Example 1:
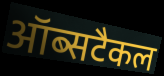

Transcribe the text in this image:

ऑब्सटैकल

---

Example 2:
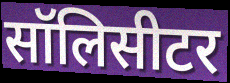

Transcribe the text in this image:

सॉलिसीटर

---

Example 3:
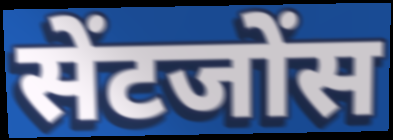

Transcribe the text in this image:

सेंटजोंस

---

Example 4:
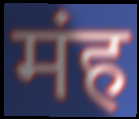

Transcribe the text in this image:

मंह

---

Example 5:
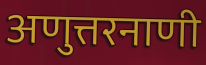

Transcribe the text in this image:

अणुत्तरनाणी